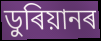
ডুৰিয়ানৰ